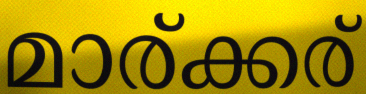
മാര്ക്കര്